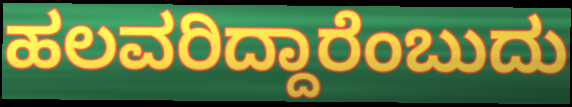
ಹಲವರಿದ್ದಾರೆಂಬುದು